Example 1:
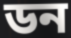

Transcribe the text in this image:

ডন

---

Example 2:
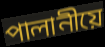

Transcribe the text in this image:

পালানীয়ে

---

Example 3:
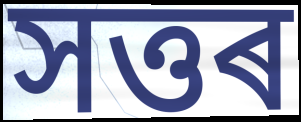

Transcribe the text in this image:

সত্তৰ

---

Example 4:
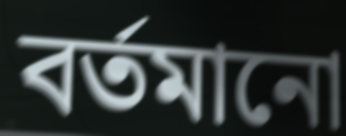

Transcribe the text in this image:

বৰ্তমানো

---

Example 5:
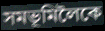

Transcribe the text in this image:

সমভূমিলৈকে